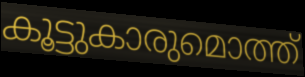
കൂട്ടുകാരുമൊത്ത്